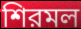
শিরমল